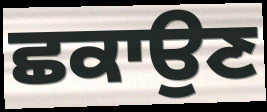
ਛਕਾਉਣ